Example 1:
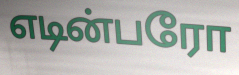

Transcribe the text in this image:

எடின்பரோ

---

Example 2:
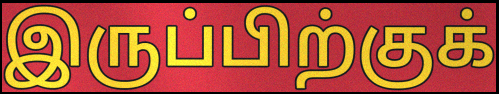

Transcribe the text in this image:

இருப்பிற்குக்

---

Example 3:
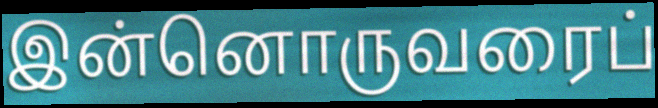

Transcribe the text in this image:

இன்னொருவரைப்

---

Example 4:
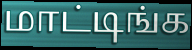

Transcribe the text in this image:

மாட்டிங்க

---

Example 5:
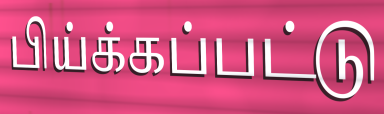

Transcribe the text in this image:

பிய்க்கப்பட்டு